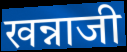
खन्नाजी